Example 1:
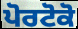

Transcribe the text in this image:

ਪੋਰਟੋਕੋ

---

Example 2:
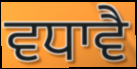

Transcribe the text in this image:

ਵਧਾਵੈ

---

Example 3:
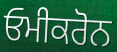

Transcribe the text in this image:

ਓਮੀਕਰੋਨ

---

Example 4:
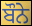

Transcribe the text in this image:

ਬੌਨੇ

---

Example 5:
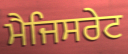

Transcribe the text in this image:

ਮੈਜਿਸਰੇਟ